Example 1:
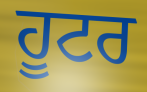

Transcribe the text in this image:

ਹੂਟਰ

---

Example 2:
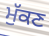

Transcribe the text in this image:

ਮੁੱਕਣ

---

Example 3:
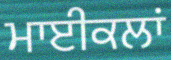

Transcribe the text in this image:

ਮਾਈਕਲਾਂ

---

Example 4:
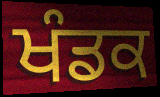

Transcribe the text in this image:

ਖੰਡਕ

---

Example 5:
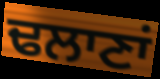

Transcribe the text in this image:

ਢਲਾਣਾਂ